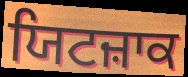
ਯਿਟਜ਼ਾਕ